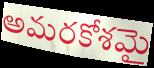
అమరకోశమై